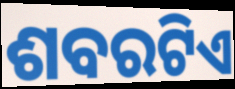
ଶବରଟିଏ